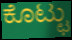
ಕೊಟ್ಟು